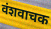
वंशवाचक